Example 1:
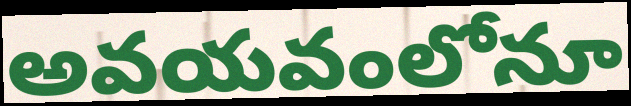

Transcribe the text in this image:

అవయవంలోనూ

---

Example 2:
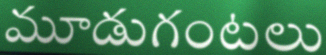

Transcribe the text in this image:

మూడుగంటలు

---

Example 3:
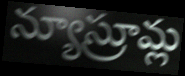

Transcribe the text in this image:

న్యూస్రూమ్ల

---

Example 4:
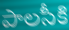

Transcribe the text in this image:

పాలసీకి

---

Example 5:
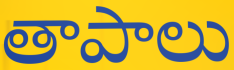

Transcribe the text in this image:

తాపాలు